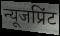
न्यूजप्रिंट